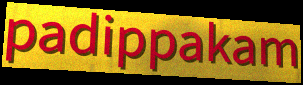
padippakam